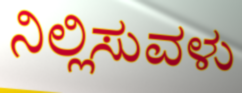
ನಿಲ್ಲಿಸುವಳು